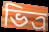
ভিত্র